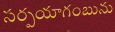
సర్పయాగంబును